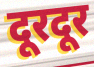
दूरदूर